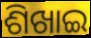
ଶିଖାଇ